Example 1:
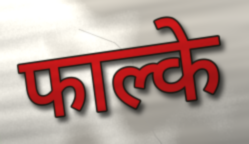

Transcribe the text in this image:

फाल्के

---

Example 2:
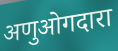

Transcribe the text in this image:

अणुओगदारा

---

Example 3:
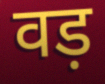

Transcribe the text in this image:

वड़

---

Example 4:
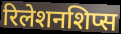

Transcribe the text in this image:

रिलेशनशिप्स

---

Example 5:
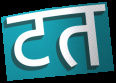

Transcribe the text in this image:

टत